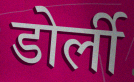
डोर्ली